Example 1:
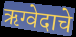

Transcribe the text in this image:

ऋग्वेदाचे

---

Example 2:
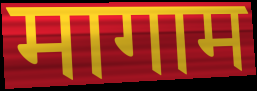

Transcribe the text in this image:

मागाम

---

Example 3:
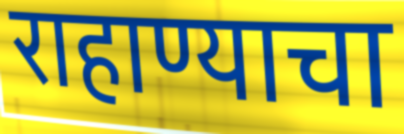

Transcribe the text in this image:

राहाण्याचा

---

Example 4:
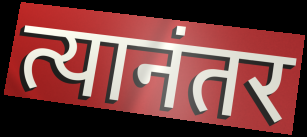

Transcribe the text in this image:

त्यानंतर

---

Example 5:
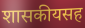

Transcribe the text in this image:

शासकीयसह